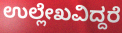
ಉಲ್ಲೇಖವಿದ್ದರೆ